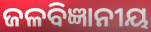
ଜଳବିଜ୍ଞାନୀୟ